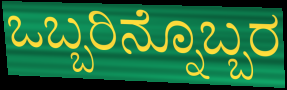
ಒಬ್ಬರಿನ್ನೊಬ್ಬರ